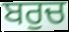
ਬਰੁਚ